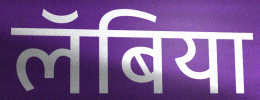
लॅबिया